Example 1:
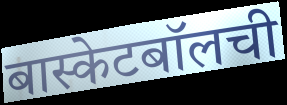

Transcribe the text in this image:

बास्केटबॉलची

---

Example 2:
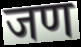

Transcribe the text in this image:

जण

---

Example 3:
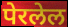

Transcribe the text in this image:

पेरलेल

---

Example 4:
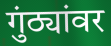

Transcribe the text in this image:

गुंठ्यांवर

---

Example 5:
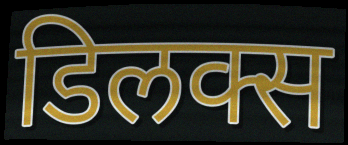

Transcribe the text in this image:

डिलक्स